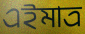
এইমাত্র